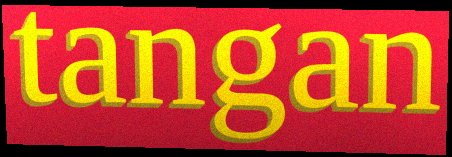
tangan